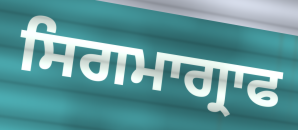
ਸਿਗਮਾਗ੍ਰਾਫ